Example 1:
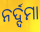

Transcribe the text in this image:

ନର୍ଦ୍ଦମା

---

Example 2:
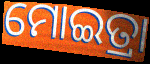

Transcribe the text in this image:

ମୋଇତ୍ରା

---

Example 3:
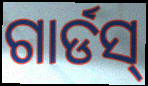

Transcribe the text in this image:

ଗାର୍ଡସ୍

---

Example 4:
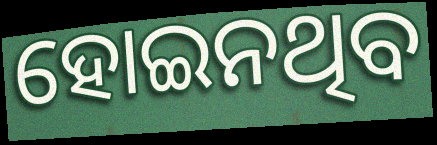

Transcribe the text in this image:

ହୋଇନଥିବ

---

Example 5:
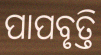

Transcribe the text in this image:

ପାପବୃତ୍ତି